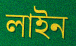
লাইন